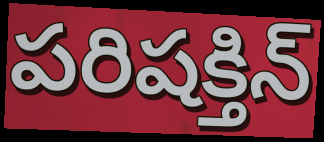
పరిషక్తిన్